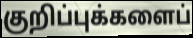
குறிப்புக்களைப்